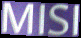
MISI